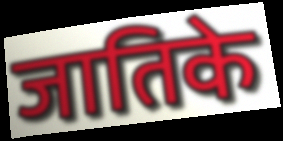
जातिके